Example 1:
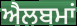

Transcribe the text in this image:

ਐਲਬਮਾਂ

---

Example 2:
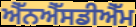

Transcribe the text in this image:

ਐੱਨਐੱਸਡੀਐੱਮ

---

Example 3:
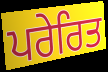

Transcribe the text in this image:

ਪਰੇਰਿਤ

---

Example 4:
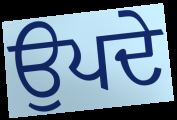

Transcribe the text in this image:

ਉਪਦੇ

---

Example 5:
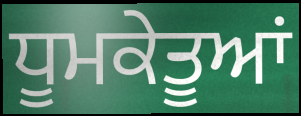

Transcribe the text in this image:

ਧੂਮਕੇਤੂਆਂ